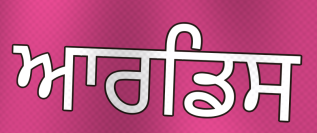
ਆਰਡਿਸ